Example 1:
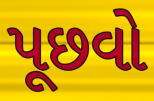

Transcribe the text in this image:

પૂછવો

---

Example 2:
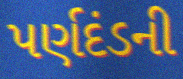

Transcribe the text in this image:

પર્ણદંડની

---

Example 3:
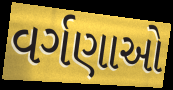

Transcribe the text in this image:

વર્ગણાઓ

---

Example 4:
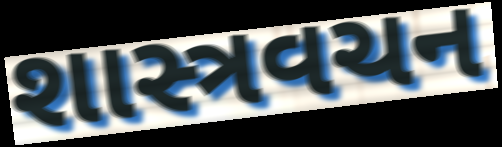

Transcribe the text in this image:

શાસ્ત્રવચન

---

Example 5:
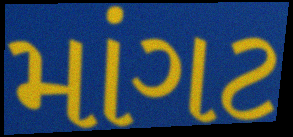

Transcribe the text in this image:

માંગટ